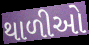
થાળીઓ